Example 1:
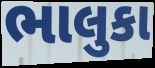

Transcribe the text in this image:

ભાલુકા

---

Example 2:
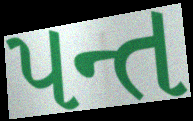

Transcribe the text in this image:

પન્ત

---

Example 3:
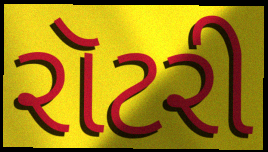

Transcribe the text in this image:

રૉટરી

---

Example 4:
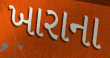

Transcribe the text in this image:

ખારાના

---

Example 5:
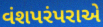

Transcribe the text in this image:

વંશપરંપરાએ